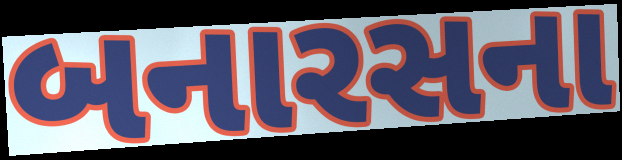
બનારસના